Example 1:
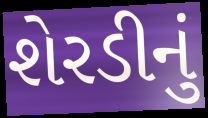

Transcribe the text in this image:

શેરડીનું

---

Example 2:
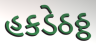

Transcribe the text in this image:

હકડેઠઠ્ઠ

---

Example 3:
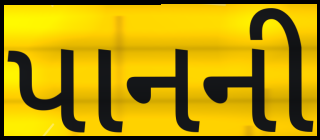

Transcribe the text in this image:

પાનની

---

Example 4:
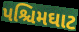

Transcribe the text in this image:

પશ્ચિમઘાટ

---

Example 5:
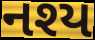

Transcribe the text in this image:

નશ્ય